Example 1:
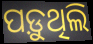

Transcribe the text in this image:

ପଡ଼ୁଥିଲି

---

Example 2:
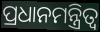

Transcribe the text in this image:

ପ୍ରଧାନମନ୍ତ୍ରିତ୍ଵ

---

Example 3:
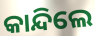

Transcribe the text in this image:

କାନ୍ଦିଲେ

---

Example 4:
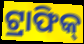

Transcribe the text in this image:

ଟ୍ରାଫିକ୍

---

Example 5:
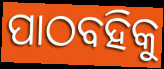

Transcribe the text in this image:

ପାଠବହିକୁ